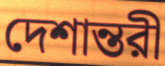
দেশান্তরী